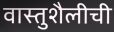
वास्तुशैलीची